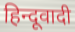
हिन्दूवादी